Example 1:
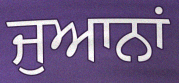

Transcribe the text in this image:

ਜੁਆਨਾਂ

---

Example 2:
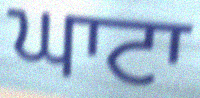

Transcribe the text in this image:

ਘਾਟਾ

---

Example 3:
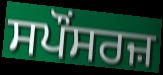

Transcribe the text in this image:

ਸਪੌਂਸਰਜ਼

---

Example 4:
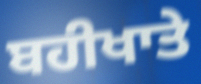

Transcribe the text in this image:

ਬਹੀਖਾਤੇ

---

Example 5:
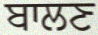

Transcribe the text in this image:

ਬਾਲਣ